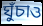
ঘুঁচাও